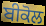
ਬੀਕੋਲ